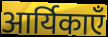
आर्यिकाएँ